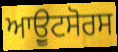
ਆਉੂਟਸੋਰਸ